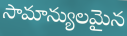
సామాన్యులమైన